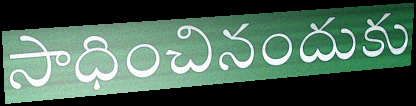
సాధించినందుకు